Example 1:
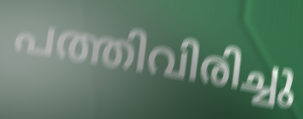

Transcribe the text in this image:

പത്തിവിരിച്ചു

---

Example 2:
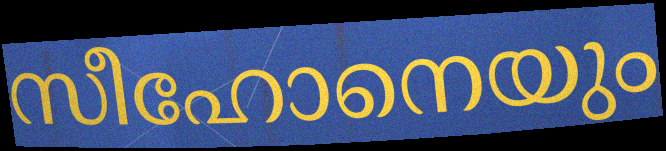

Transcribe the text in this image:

സീഹോനെയും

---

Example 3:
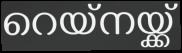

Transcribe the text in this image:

റെയ്നയ്ക്ക്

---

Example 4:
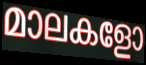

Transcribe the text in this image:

മാലകളോ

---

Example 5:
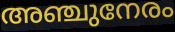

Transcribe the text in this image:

അഞ്ചുനേരം